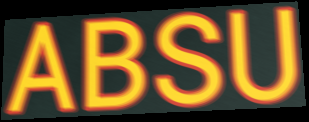
ABSU